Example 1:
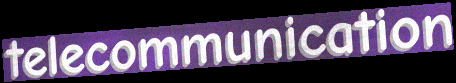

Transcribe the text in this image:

telecommunication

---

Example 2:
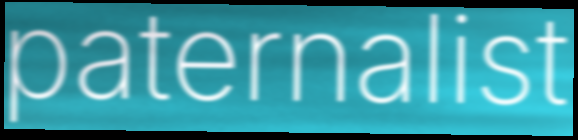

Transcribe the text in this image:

paternalist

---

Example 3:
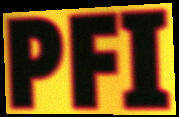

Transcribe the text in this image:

PFI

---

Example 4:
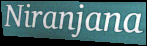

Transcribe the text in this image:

Niranjana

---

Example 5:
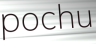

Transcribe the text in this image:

pochu